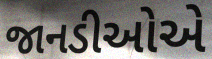
જાનડીઓએ